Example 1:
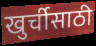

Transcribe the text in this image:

खुर्चीसाठी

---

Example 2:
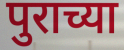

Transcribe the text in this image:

पुराच्या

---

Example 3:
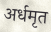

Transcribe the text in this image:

अर्धमृत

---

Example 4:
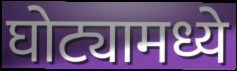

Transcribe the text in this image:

घोट्यामध्ये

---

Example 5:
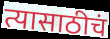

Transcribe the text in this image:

त्यासाठीचं